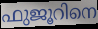
ഫുജൂറിനെ